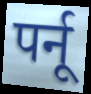
पर्नू